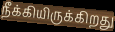
நீக்கியிருக்கிறது